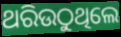
ଥରିଉଠୁଥିଲେ